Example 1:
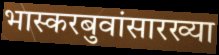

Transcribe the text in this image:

भास्करबुवांसारख्या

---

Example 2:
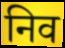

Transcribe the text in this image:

निव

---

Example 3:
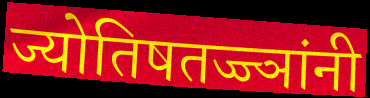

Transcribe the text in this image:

ज्योतिषतज्ज्ञांनी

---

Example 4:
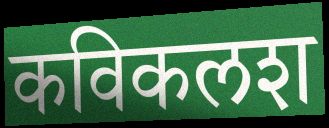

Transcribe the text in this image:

कविकलश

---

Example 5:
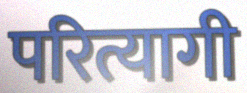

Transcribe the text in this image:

परित्यागी